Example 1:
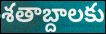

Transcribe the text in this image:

శతాబ్దాలకు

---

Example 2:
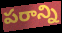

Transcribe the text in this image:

పరాన్ని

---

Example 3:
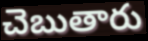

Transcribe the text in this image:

చెబుతారు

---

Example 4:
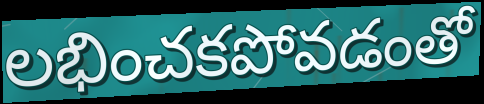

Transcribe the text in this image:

లభించకపోవడంతో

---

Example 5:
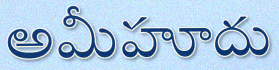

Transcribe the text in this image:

అమీహూదు